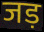
जड़